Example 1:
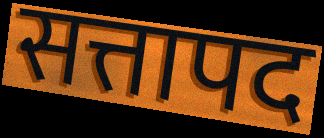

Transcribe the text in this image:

सत्तापद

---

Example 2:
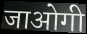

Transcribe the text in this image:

जाओगी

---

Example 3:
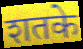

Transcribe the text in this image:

शतके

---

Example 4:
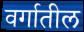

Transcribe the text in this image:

वर्गातील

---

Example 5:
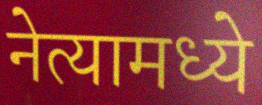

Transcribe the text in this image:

नेत्यामध्ये